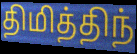
திமித்திந்